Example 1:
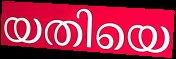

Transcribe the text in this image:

യതിയെ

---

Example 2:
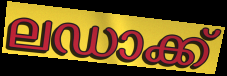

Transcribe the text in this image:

ലഡാക്ക്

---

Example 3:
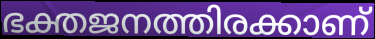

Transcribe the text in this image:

ഭക്തജനത്തിരക്കാണ്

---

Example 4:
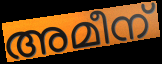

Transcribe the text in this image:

അമീന്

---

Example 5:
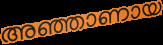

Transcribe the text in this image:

അഞ്ഞാണായ